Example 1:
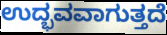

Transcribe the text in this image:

ಉದ್ಭವವಾಗುತ್ತದೆ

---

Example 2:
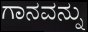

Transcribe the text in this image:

ಗಾನವನ್ನು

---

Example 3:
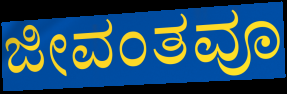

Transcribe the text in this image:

ಜೀವಂತವೂ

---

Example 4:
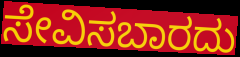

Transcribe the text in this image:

ಸೇವಿಸಬಾರದು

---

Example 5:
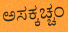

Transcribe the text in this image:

ಅಸಕ್ಕಚ್ಚಂ